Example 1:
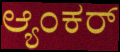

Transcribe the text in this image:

ಆ್ಯಂಕರ್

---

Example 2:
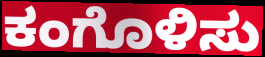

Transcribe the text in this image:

ಕಂಗೊಳಿಸು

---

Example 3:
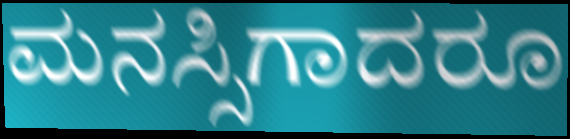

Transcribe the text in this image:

ಮನಸ್ಸಿಗಾದರೂ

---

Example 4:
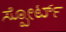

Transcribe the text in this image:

ಸ್ಪೋರ್ಟ್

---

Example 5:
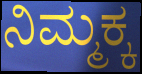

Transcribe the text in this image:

ನಿಮ್ಮಕ್ಕ